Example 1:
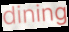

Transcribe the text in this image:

dining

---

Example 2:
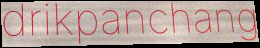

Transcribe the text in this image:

drikpanchang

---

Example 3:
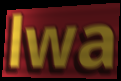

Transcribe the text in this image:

lwa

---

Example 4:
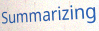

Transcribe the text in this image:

Summarizing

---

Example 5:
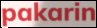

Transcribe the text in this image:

pakarin